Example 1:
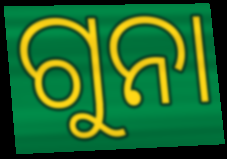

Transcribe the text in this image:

ଗୁନା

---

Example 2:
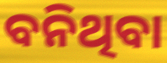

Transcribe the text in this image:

ବନିଥିବା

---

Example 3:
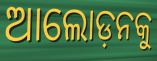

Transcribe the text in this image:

ଆଲୋଡ଼ନକୁ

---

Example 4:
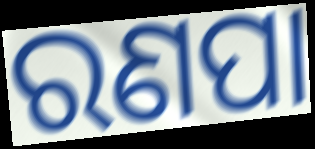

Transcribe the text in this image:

ରଣପା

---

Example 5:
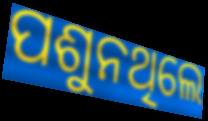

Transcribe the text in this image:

ପଶୁନଥିଲେ